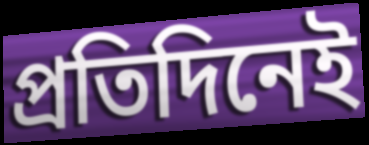
প্ৰতিদিনেই